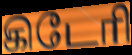
கிடேரி